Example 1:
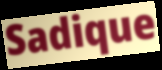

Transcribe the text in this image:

Sadique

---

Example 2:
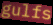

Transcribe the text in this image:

gulfs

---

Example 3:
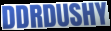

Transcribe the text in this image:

DDRDUSHY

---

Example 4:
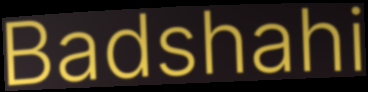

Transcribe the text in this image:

Badshahi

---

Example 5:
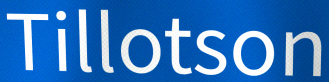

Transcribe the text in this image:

Tillotson